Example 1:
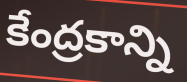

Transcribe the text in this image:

కేంద్రకాన్ని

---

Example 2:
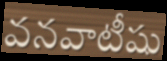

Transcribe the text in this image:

వనవాటీషు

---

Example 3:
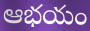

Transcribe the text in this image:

ఆభయం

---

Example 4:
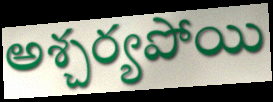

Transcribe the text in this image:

అశ్చర్యపోయి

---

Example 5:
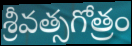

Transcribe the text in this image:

శ్రీవత్సగోత్రం